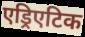
एड्रिएटिक